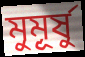
মুমূৰ্ষু